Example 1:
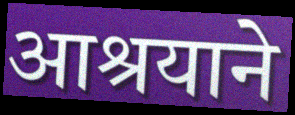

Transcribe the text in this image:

आश्रयाने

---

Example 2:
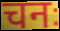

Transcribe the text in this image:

चनः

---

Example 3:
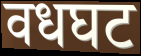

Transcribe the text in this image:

वधघट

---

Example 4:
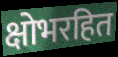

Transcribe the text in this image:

क्षोभरहित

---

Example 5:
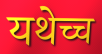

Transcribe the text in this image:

यथेच्च